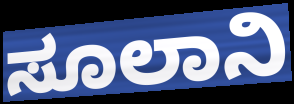
ಸೂಲಾನಿ